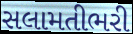
સલામતીભરી